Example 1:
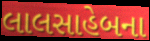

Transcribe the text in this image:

લાલસાહેબના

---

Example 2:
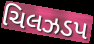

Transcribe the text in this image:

ચિલઝડપ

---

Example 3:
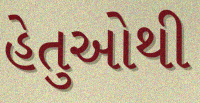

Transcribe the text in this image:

હેતુઓથી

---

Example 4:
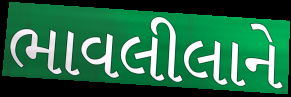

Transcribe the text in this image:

ભાવલીલાને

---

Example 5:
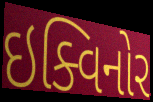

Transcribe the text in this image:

ઇક્વિનોર